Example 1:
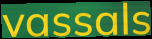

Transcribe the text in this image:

vassals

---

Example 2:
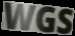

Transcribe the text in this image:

WGS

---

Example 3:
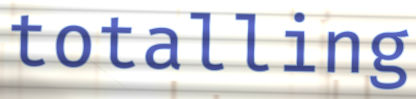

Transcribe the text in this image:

totalling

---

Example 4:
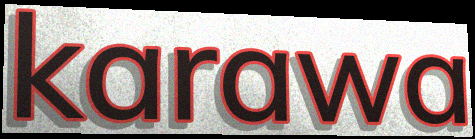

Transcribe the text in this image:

karawa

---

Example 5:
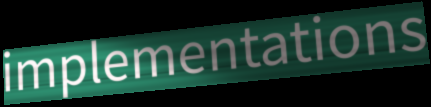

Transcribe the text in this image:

implementations